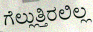
ಗೆಲ್ಲುತ್ತಿರಲಿಲ್ಲ